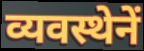
व्यवस्थेनें